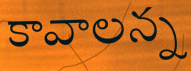
కావాలన్న